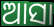
ଆସା